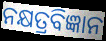
ନକ୍ଷତ୍ରବିଜ୍ଞାନ